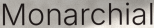
Monarchial